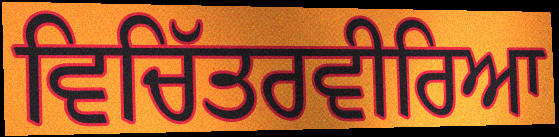
ਵਿਚਿੱਤਰਵੀਰਿਆ